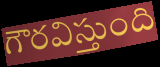
గౌరవిస్తుంది